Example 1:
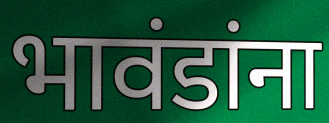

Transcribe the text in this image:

भावंडांना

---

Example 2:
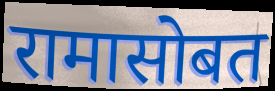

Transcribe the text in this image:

रामासोबत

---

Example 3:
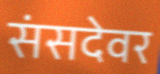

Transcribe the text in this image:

संसदेवर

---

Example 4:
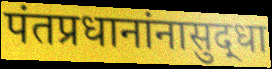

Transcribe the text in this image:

पंतप्रधानांनासुद्धा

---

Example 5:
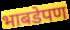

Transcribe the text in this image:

भाबडेपण